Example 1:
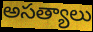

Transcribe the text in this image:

అసత్యాలు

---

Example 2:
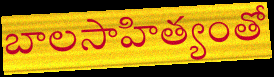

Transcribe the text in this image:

బాలసాహిత్యంతో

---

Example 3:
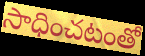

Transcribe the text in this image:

సాధించటంతో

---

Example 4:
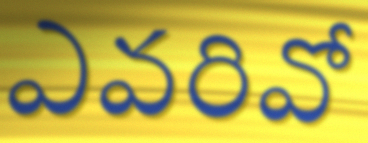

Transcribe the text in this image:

ఎవరివో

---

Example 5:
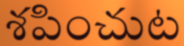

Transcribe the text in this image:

శపించుట